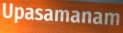
Upasamanam